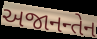
અજાનન્તેન